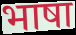
भाषा